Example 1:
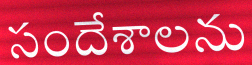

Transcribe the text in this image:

సందేశాలను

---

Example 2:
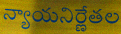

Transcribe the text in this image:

న్యాయనిర్ణేతల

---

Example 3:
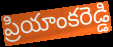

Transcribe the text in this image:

ప్రియాంకరెడ్డి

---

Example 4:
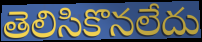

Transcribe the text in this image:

తెలిసికొనలేదు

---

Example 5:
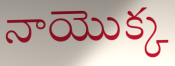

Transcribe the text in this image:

నాయొక్క